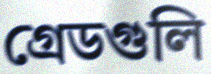
গ্রেডগুলি